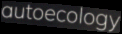
autoecology